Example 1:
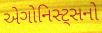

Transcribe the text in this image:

એગોનિસ્ટ્સનો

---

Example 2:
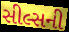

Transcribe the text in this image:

સીલ્સની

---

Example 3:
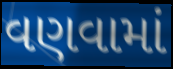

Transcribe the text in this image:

વણવામાં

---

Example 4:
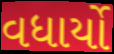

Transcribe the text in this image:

વધાર્યો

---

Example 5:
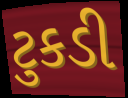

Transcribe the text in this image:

ટુકડી